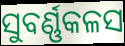
ସୁବର୍ଣ୍ଣକଳସ